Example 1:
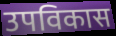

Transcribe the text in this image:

उपविकास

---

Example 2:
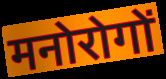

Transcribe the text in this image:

मनोरोगों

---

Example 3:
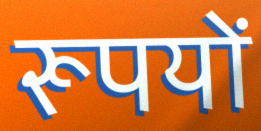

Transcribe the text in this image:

रूपयों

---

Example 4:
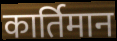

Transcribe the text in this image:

कार्तिमान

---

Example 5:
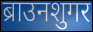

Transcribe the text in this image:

ब्राउनशुगर